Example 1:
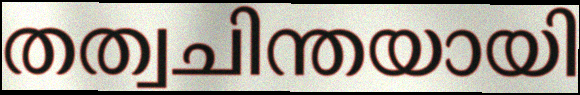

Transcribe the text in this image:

തത്വചിന്തയായി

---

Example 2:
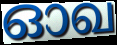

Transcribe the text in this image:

ഓഖ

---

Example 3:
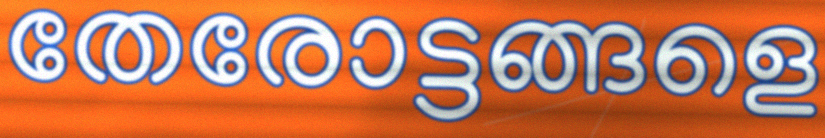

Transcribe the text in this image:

തേരോട്ടങ്ങളെ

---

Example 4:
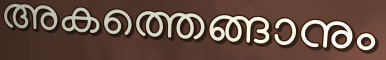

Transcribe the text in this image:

അകത്തെങ്ങാനും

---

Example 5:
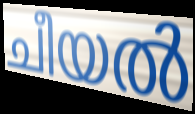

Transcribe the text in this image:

ചീയൽ